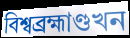
বিশ্বব্ৰহ্মাণ্ডখন